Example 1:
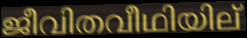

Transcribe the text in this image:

ജീവിതവീഥിയില്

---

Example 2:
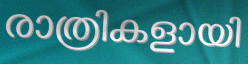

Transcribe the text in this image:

രാത്രികളായി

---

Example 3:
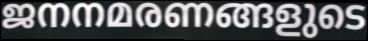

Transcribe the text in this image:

ജനനമരണങ്ങളുടെ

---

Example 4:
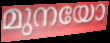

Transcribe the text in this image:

മുനയോ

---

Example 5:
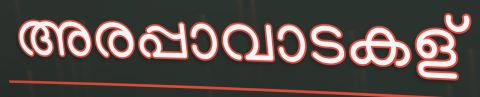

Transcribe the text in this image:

അരപ്പാവാടകള്